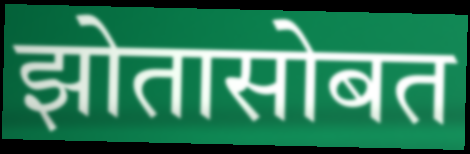
झोतासोबत